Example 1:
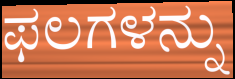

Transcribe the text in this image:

ಫಲಗಳನ್ನು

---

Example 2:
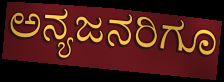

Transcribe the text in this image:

ಅನ್ಯಜನರಿಗೂ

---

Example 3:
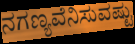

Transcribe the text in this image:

ನಗಣ್ಯವೆನಿಸುವಷ್ಟು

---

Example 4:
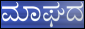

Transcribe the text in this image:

ಮಾಘದ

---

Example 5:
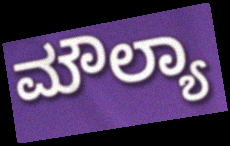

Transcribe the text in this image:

ಮೌಲ್ಯಾ